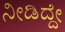
ನೀಡಿದ್ದೇ